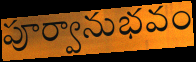
పూర్వానుభవం